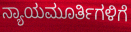
ನ್ಯಾಯಮೂರ್ತಿಗಳಿಗೆ